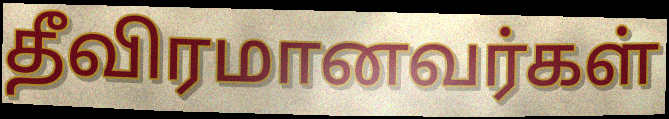
தீவிரமானவர்கள்